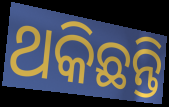
ଥକିଛନ୍ତି